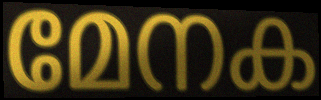
മേനക